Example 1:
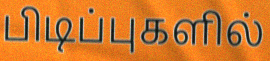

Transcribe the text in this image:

பிடிப்புகளில்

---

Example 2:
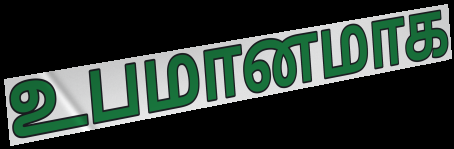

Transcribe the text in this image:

உபமானமாக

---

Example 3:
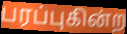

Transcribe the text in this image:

பரப்புகின்ற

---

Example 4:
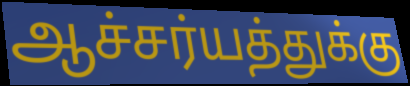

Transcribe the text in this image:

ஆச்சர்யத்துக்கு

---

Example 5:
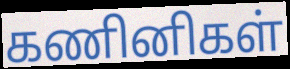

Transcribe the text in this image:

கணினிகள்